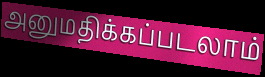
அனுமதிக்கப்படலாம்